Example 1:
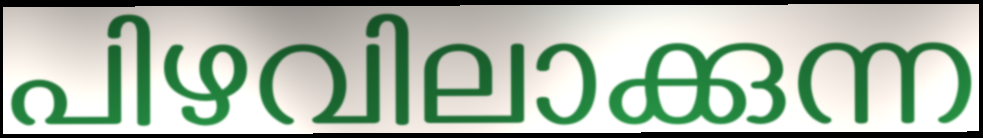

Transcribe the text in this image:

പിഴവിലാക്കുന്ന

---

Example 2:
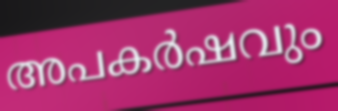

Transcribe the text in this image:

അപകർഷവും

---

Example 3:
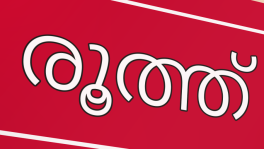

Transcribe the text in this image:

രൂത്ത്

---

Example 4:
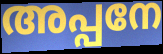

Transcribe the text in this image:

അപ്പനേ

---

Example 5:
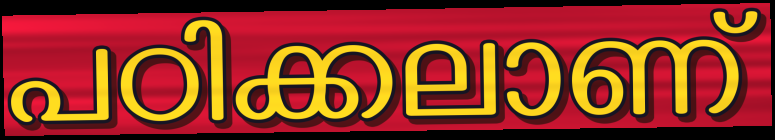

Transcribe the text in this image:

പഠിക്കലാണ്